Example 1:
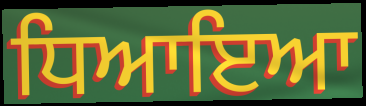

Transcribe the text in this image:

ਧਿਆਇਆ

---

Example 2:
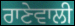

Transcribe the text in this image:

ਰਾਣੇਵਾਲੀ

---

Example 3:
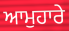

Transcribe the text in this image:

ਆਮੁਹਾਰੇ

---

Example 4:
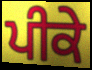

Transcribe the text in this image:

ਪੀਕੇ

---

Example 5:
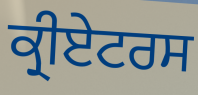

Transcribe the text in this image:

ਕ੍ਰੀਏਟਰਸ